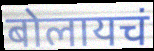
बोलायचं